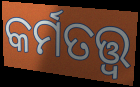
କର୍ମତତ୍ତ୍ୱ